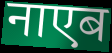
नाएब